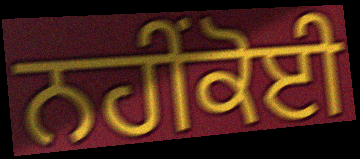
ਨਹੀਂਕੋਈ